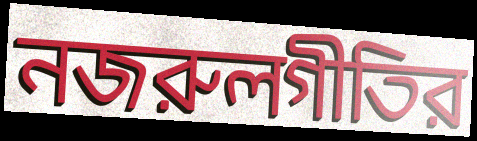
নজরুলগীতির